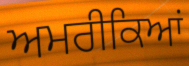
ਅਮਰੀਕਿਆਂ